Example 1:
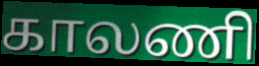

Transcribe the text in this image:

காலணி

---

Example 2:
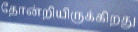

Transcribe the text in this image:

தோன்றியிருக்கிறது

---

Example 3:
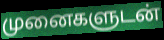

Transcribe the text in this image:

முனைகளுடன்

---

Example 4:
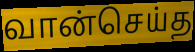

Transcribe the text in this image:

வான்செய்த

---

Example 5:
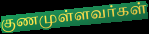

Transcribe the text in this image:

குணமுள்ளவர்கள்